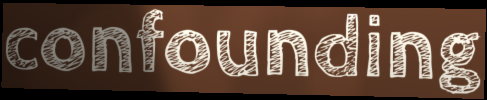
confounding